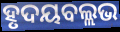
ହୃଦୟବଲ୍ଲଭ